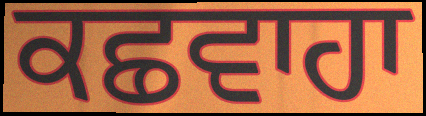
ਕਛਵਾਹਾ